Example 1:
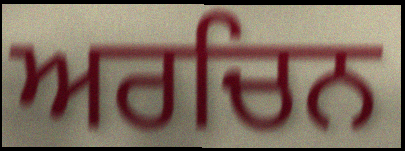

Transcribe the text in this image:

ਅਰਚਿਨ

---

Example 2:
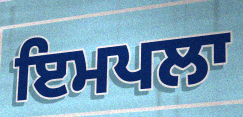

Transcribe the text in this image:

ਇਮਪਲਾ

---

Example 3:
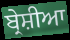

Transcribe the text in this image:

ਬ੍ਰੇਸ਼ੀਆ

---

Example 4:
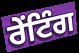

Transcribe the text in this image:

ਰੇਂਟਿੰਗ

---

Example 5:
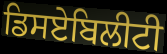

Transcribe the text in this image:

ਡਿਸਏਬਿਲੀਟੀ